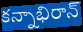
కన్నాభిరాన్